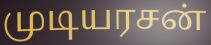
முடியரசன்